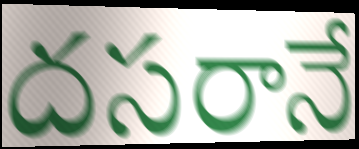
దసరానే